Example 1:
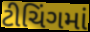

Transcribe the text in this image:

ટીચિંગમાં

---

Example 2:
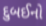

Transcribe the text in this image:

દુબઈનો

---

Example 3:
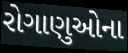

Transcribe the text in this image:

રોગાણુઓના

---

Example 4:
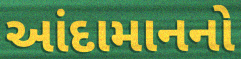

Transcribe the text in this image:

આંદામાનનો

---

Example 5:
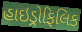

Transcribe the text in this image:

હાઇડ્રોફિલિક